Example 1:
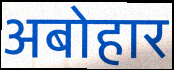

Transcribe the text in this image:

अबोहार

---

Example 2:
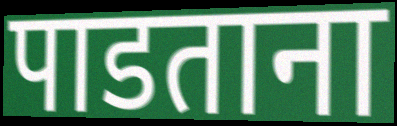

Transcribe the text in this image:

पाडताना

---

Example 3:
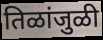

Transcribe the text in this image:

तिळांजुळी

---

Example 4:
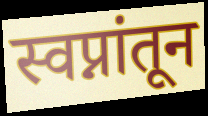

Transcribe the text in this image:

स्वप्नांतून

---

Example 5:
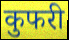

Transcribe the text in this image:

कुफरी